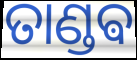
ତାଣ୍ଡଵ